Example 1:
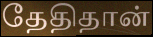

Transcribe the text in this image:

தேதிதான்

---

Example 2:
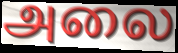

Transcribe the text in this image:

அலை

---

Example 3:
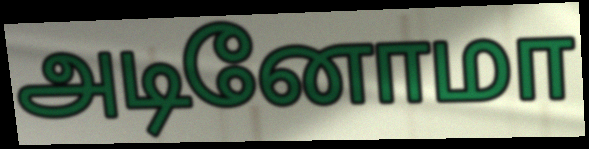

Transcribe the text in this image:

அடினோமா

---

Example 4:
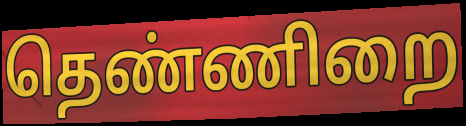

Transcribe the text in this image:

தெண்ணிறை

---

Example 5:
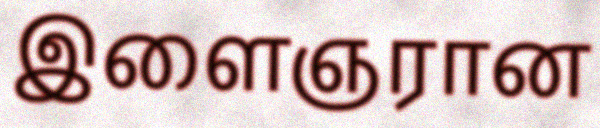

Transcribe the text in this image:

இளைஞரான